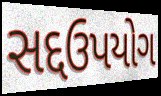
સદ્દઉપયોગ